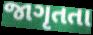
જાગૃતતા